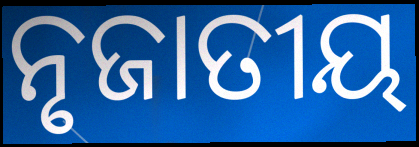
ନୃଜାତୀୟ